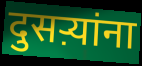
दुसऱ्‍यांना